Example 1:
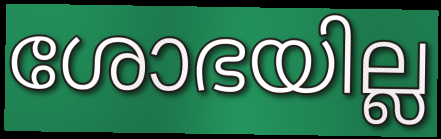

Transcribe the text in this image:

ശോഭയില്ല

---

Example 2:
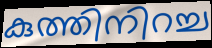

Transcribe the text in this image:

കുത്തിനിറച്ച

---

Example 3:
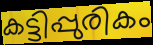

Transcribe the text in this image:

കട്ടിപ്പുരികം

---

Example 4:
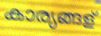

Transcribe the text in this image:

കാര്യങ്ങള്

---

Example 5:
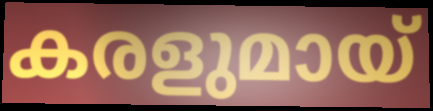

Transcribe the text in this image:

കരളുമായ്